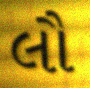
લૌ